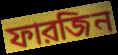
ফারজিন